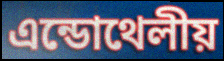
এন্ডোথেলীয়